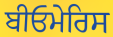
ਬੀਓਮੇਰਿਸ